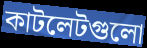
কাটলেটগুলো